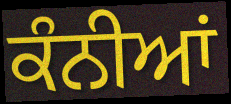
ਕੰਨੀਆਂ